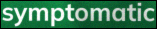
symptomatic